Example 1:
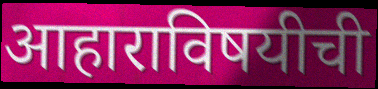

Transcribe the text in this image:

आहाराविषयीची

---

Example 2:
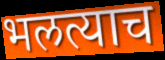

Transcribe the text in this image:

भलत्याच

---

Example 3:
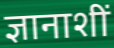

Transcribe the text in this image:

ज्ञानाशीं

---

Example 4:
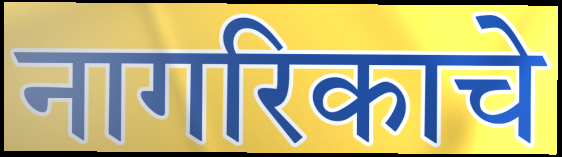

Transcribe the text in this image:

नागरिकाचे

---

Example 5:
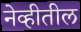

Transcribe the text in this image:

नेव्हीतील